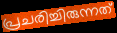
പ്രചരിച്ചിരുന്നത്